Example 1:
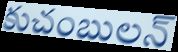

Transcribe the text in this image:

కుచంబులన్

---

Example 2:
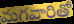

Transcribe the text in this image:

మగవారితో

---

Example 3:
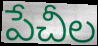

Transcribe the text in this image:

పేచీల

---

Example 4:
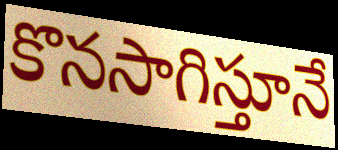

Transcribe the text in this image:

కొనసాగిస్తూనే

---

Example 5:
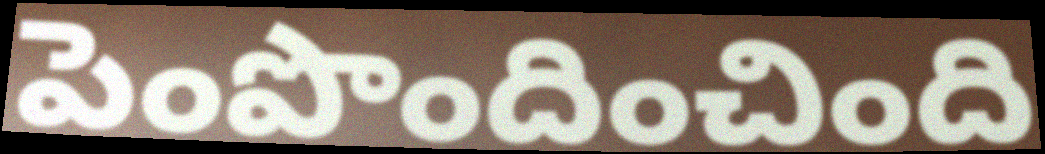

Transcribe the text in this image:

పెంపొందించింది